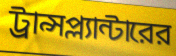
ট্রান্সপ্ল্যান্টারের